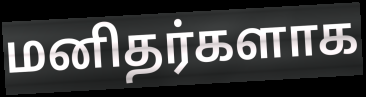
மனிதர்களாக